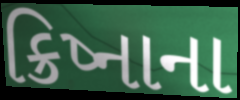
ક્રિષ્નાના